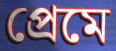
প্রেমে